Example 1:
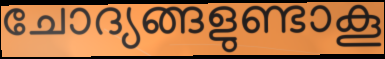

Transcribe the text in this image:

ചോദ്യങ്ങളുണ്ടാകൂ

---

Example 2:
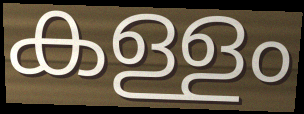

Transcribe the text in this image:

കള്ളം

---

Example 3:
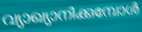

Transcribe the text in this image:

വ്യാഖ്യാനിക്കുമ്പോൾ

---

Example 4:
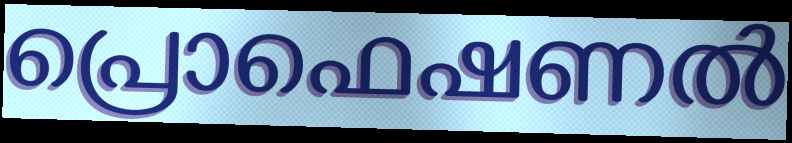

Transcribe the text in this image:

പ്രൊഫെഷണൽ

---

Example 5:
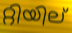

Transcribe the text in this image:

റ്റിയില്